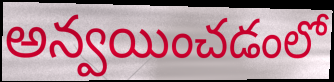
అన్వయించడంలో